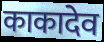
काकादेव